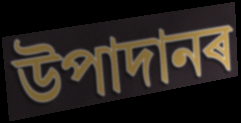
উপাদানৰ